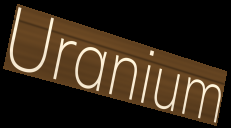
Uranium